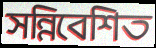
সন্নিবেশিত